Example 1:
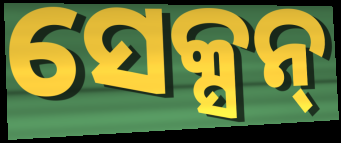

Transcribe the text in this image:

ସେକ୍ସନ୍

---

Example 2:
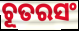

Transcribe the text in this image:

ଚୂତରସଂ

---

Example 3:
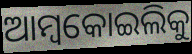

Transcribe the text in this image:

ଆମ୍ବକୋଇଲିକୁ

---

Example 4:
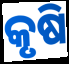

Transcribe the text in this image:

କୃଷି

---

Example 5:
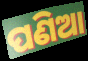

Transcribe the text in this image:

ପଣିଆ